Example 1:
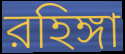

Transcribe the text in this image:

রহিঙ্গা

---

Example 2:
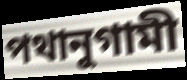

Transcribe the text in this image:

পথানুগামী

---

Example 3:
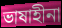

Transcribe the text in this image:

ভাষাহীনা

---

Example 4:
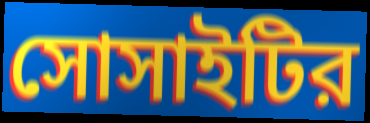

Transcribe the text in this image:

সোসাইটির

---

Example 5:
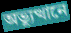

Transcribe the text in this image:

অভ্যুত্থানে